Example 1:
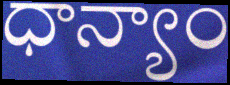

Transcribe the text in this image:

ధాన్యాం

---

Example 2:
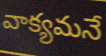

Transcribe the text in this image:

వాక్యమనే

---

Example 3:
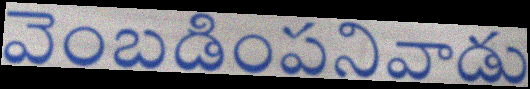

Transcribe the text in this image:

వెంబడింపనివాడు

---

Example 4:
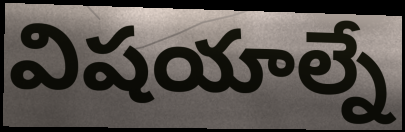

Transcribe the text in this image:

విషయాల్నే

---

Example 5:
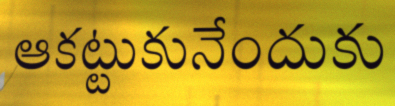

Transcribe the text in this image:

ఆకట్టుకునేందుకు